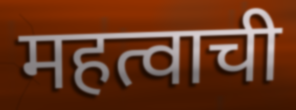
महत्वाची